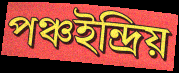
পঞ্চইন্দ্রিয়